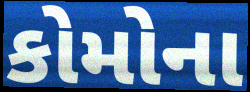
કોમોના